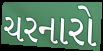
ચરનારો